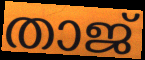
താജ്